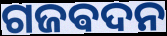
ଗଜଵଦନ